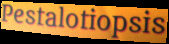
Pestalotiopsis